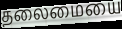
தலைமையை